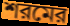
শরমের